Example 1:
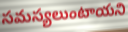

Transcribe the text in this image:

సమస్యలుంటాయని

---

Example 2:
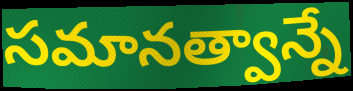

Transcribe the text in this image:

సమానత్వాన్నే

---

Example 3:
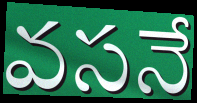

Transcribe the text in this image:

వసనే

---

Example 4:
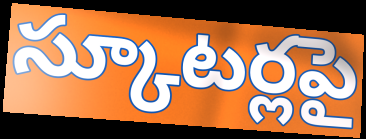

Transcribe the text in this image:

స్కూటర్లపై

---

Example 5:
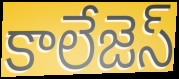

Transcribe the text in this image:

కాలేజెస్